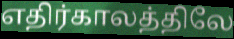
எதிர்காலத்திலே